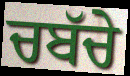
ਚਬੱਚੇ